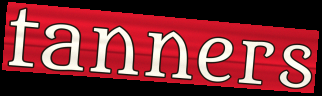
tanners